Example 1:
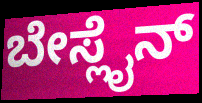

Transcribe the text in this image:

ಬೇಸ್ಲೈನ್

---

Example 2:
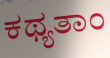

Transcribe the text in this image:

ಕಥ್ಯತಾಂ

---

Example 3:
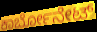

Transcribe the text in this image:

ಕಾರ್ಬೋನೇಟ್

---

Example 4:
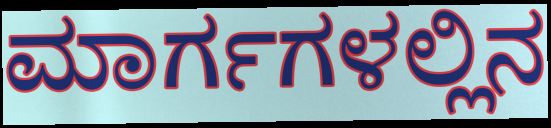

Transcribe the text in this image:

ಮಾರ್ಗಗಳಲ್ಲಿನ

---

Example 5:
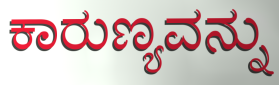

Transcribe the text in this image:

ಕಾರುಣ್ಯವನ್ನು